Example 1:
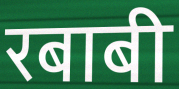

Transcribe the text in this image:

रबाबी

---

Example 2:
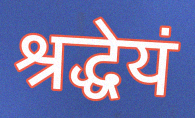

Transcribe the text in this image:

श्रद्धेयं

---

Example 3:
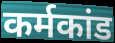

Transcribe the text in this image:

कर्मकांड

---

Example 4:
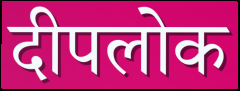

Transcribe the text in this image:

दीपलोक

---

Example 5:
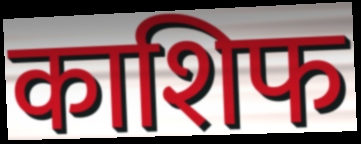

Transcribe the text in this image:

काशिफ